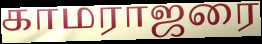
காமராஜரை